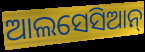
ଆଲସେସିଆନ୍